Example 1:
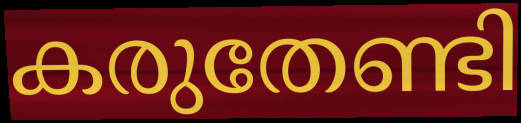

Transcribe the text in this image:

കരുതേണ്ടി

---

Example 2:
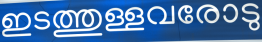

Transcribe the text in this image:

ഇടത്തുള്ളവരോടു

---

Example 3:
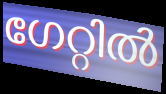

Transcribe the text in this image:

ഗേറ്റിൽ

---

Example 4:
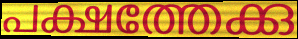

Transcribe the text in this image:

പക്ഷത്തേക്കു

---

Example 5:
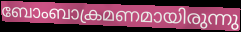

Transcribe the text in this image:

ബോംബാക്രമണമായിരുന്നു